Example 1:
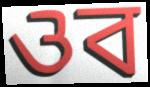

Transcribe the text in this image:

ওব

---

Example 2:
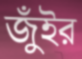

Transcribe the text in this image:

জুঁইর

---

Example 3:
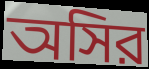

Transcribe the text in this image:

অসির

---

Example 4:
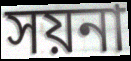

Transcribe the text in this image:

সয়না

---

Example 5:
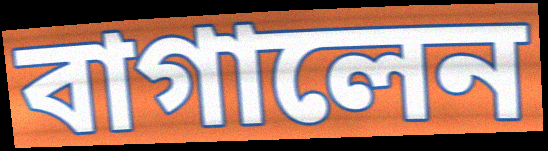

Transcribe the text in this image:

বাগালেন